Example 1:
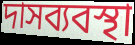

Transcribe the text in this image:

দাসব্যবস্থা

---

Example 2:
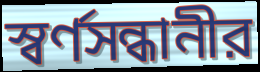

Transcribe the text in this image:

স্বর্ণসন্ধানীর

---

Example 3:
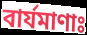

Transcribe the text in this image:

বার্যমাণাঃ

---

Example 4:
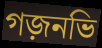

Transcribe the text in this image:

গজ়নভি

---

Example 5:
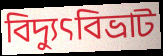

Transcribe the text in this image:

বিদ্যুৎবিভ্রাট